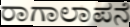
ರಾಗಾಲಾಪನೆ